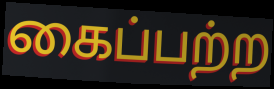
கைப்பற்ற